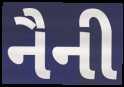
નૈની